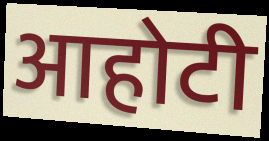
आहोटी